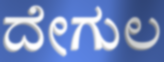
ದೇಗುಲ